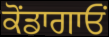
ਕੋਂਡਾਗਾਓਂ